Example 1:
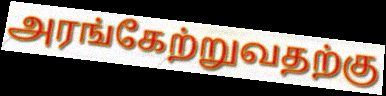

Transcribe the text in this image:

அரங்கேற்றுவதற்கு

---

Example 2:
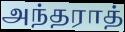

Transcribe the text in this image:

அந்தராத்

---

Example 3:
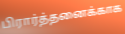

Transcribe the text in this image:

பிரார்த்தனைக்காக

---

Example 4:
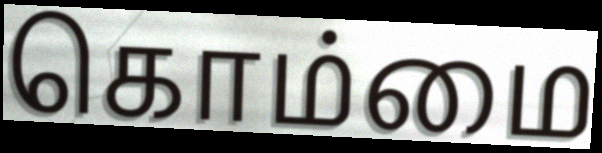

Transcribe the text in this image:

கொம்மை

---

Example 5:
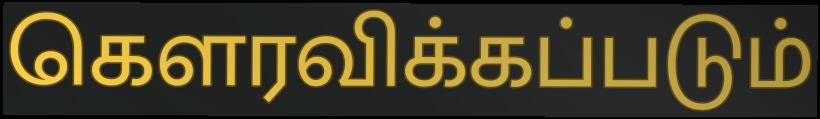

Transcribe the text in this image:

கௌரவிக்கப்படும்